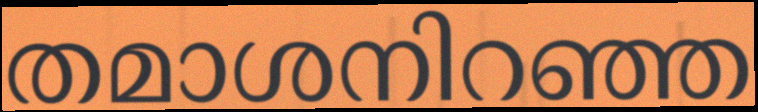
തമാശനിറഞ്ഞ